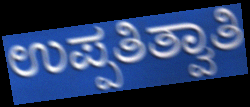
ಉಪ್ಪತಿತ್ವಾತಿ